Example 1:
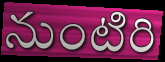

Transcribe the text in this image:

నుంటిరి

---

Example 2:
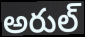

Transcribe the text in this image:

అరుల్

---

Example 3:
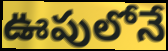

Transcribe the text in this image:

ఊపులోనే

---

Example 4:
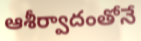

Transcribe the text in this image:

ఆశీర్వాదంతోనే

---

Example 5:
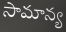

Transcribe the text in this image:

సామాన్య